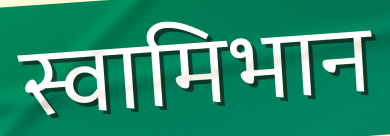
स्वामिभान